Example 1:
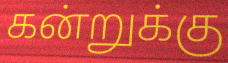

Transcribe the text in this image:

கன்றுக்கு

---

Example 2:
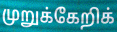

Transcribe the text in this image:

முறுக்கேறிக்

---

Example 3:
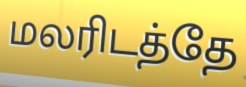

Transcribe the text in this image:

மலரிடத்தே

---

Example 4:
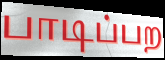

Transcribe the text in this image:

பாடிப்பற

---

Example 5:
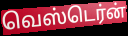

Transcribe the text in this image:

வெஸ்டெர்ன்